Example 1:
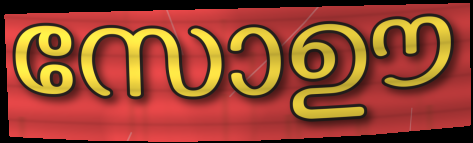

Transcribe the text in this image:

സോഊ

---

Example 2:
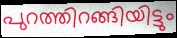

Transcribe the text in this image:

പുറത്തിറങ്ങിയിട്ടും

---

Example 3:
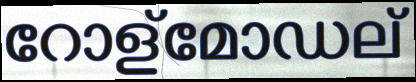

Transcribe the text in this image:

റോള്മോഡല്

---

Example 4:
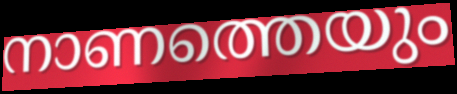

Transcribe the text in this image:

നാണത്തെയും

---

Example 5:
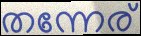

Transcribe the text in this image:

തന്നേര്